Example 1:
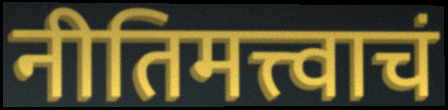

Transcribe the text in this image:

नीतिमत्त्वाचं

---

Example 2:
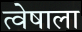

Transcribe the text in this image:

त्वेषाला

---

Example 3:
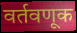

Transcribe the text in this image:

वर्तवणूक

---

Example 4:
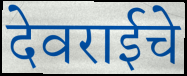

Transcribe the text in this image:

देवराईचे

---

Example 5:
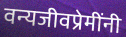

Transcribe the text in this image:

वन्यजीवप्रेमींनी